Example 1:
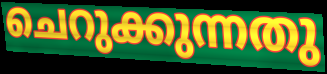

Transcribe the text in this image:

ചെറുക്കുന്നതു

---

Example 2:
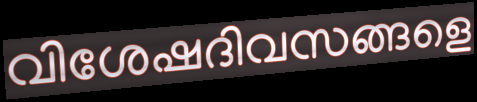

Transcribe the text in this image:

വിശേഷദിവസങ്ങളെ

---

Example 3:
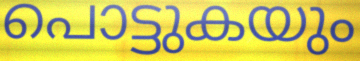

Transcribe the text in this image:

പൊട്ടുകയും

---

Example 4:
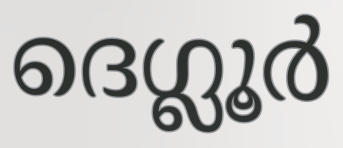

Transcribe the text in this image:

ദെഗ്ലൂർ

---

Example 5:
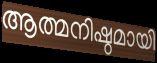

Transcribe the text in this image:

ആത്മനിഷ്ഠമായി